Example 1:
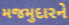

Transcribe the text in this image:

મજમુદારને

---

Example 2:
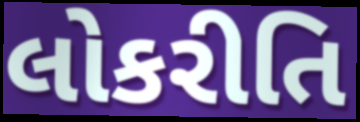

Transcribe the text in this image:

લોકરીતિ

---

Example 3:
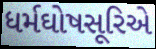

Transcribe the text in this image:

ધર્મઘોષસૂરિએ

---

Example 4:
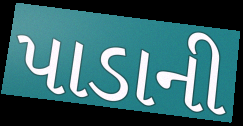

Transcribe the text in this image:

પાડાની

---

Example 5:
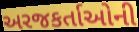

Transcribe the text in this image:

અરજકર્તાઓની